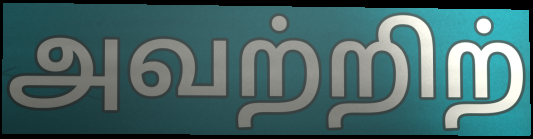
அவற்றிற்